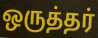
ஒருத்தர்